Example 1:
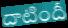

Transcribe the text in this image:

దాటిందీ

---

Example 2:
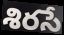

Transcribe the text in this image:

శిరసే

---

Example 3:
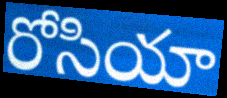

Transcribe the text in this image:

రోసియా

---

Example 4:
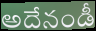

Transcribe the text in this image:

అదేనండీ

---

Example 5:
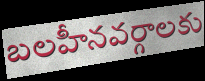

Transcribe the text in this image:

బలహీనవర్గాలకు